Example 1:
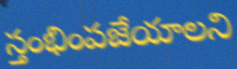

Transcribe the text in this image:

స్తంభింపజేయాలని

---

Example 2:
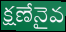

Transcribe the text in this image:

క్షణేనైవ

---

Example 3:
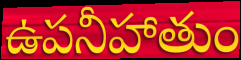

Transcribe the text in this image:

ఉపనీహాతుం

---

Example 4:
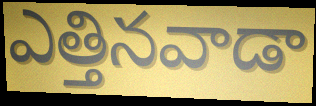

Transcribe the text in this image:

ఎత్తినవాడా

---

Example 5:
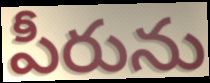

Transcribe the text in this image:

పీరును